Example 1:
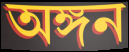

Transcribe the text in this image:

অঙ্গন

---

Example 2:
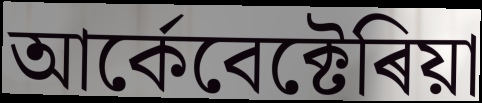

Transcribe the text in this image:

আৰ্কেবেক্টেৰিয়া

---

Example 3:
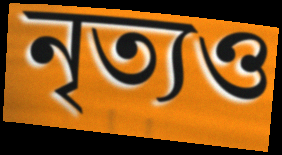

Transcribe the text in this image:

নৃত্যও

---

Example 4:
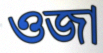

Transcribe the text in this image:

ওজা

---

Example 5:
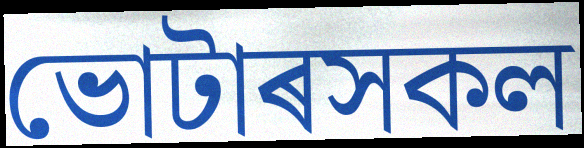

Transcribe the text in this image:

ভোটাৰসকল